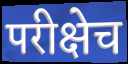
परीक्षेच